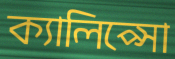
ক্যালিপ্সো